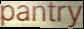
pantry